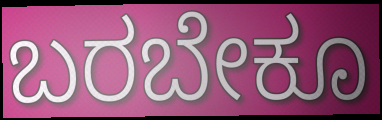
ಬರಬೇಕೂ